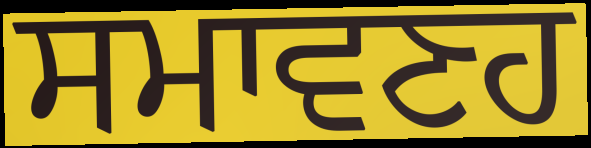
ਸਮਾਵਣਹ